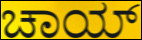
ಚಾಯ್